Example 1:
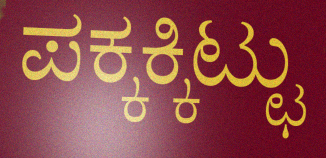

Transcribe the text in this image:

ಪಕ್ಕಕ್ಕಿಟ್ಟು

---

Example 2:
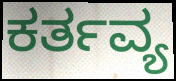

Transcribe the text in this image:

ಕರ್ತವ್ಯ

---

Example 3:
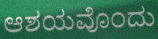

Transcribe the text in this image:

ಆಶಯವೊಂದು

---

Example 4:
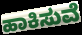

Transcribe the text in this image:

ಹಾಕಿಸುವೆ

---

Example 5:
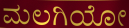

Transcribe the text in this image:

ಮಲಗಿಯೋ